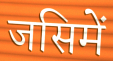
जसिमें